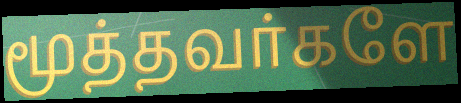
மூத்தவர்களே